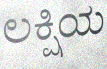
ಲಕ್ಷಿಯ